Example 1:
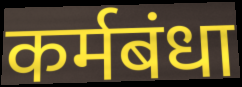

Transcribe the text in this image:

कर्मबंधा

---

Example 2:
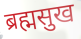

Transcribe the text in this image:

ब्रह्मसुख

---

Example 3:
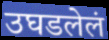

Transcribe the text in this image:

उघडलेलं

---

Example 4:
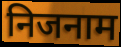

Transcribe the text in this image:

निजनाम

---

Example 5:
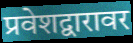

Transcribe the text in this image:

प्रवेशद्वारावर